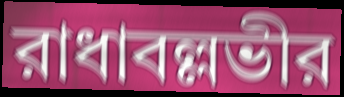
রাধাবল্লভীর